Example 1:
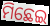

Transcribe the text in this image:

ମିଛେଇ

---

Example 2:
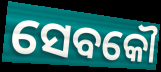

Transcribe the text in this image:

ସେବକୌ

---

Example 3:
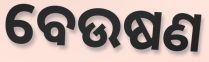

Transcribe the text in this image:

ବେଉଷଣ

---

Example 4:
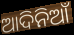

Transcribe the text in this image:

ଆଦିନିଆଁ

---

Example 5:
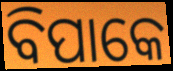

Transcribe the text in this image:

ବିପାକେ